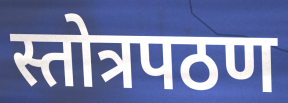
स्तोत्रपठण